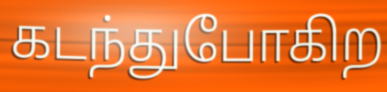
கடந்துபோகிற